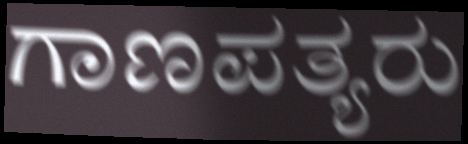
ಗಾಣಪತ್ಯರು